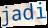
jadi